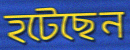
হটেছেন